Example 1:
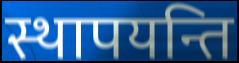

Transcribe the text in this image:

स्थापयन्ति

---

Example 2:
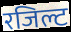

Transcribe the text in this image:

रजिल्ट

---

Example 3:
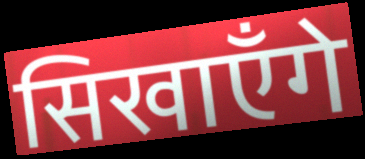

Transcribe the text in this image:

सिखाएँगे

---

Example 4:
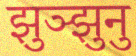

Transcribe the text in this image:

झुञ्झुनु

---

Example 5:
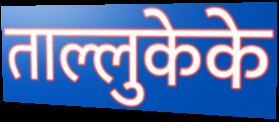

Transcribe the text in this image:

ताल्लुकेके